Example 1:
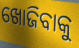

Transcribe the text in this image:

ଖୋଜିବାକୁ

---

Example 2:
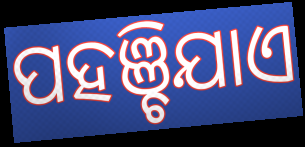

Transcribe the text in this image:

ପହଞ୍ଚିଯାଏ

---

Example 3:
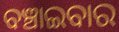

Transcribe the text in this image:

ବଞ୍ଚାଇବାର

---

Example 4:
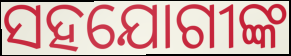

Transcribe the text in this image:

ସହଯୋଗୀଙ୍କ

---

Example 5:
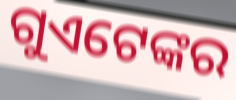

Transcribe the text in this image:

ଗୁଏଟେଙ୍କର